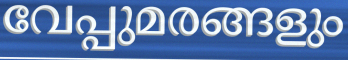
വേപ്പുമരങ്ങളും